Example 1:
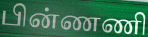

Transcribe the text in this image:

பின்ணணி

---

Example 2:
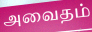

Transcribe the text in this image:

அவைதம்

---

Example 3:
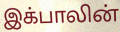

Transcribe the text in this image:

இக்பாலின்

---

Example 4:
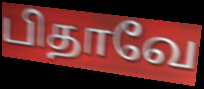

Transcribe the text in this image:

பிதாவே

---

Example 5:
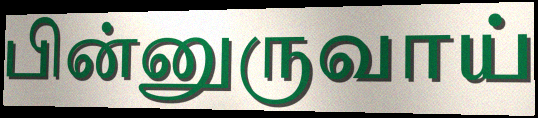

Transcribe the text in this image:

பின்னுருவாய்